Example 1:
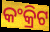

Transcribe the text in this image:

କଂକ୍ରିଟ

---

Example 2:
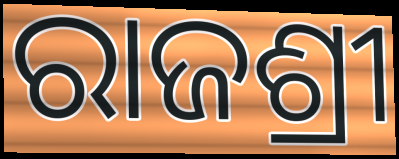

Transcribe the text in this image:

ରାଜଶ୍ରୀ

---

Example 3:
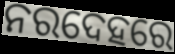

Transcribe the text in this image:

ନରଦେହରେ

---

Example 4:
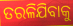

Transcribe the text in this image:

ତରଳିଯିବାକୁ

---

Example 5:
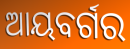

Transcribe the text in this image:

ଆୟବର୍ଗର